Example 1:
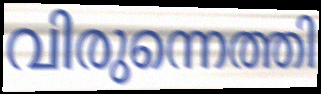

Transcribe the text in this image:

വിരുന്നെത്തി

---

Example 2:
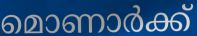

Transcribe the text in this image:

മൊണാർക്ക്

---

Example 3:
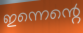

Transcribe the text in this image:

ഇന്നെന്റെ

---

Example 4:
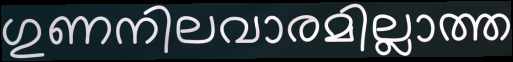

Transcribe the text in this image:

ഗുണനിലവാരമില്ലാത്ത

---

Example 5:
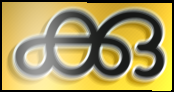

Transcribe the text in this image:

ക്കു